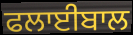
ਫਲਾਈਬਾਲ